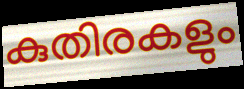
കുതിരകളും